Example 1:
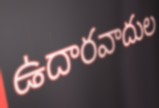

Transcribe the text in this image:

ఉదారవాదుల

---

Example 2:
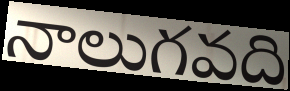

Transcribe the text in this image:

నాలుగవది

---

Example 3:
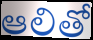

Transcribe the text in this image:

ఆలితో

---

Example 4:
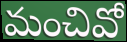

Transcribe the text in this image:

మంచివో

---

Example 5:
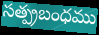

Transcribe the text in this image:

సత్ప్రబంధము